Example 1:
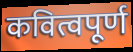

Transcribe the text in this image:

कवित्वपूर्ण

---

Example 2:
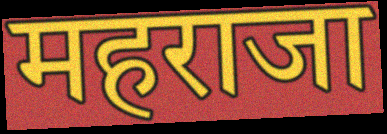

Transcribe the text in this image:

महराजा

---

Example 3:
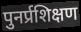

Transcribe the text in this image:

पुनर्प्रशिक्षण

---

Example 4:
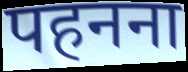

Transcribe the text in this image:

पहनना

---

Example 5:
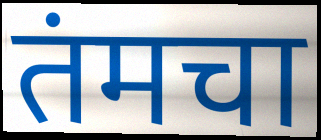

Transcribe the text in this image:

तंमचा